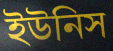
ইউনিস